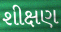
શીક્ષણ